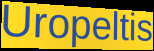
Uropeltis